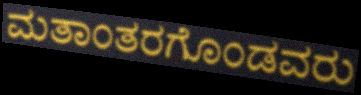
ಮತಾಂತರಗೊಂಡವರು